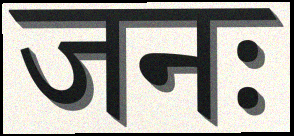
जनः